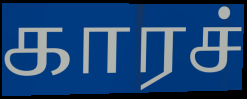
காரச்